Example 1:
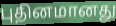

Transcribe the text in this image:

புதினமானது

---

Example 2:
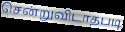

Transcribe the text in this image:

சென்றுவிடாதபடி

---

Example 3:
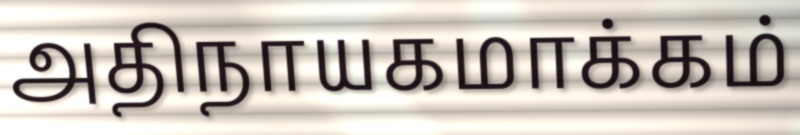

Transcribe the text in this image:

அதிநாயகமாக்கம்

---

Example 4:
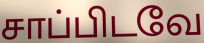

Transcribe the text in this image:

சாப்பிடவே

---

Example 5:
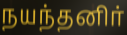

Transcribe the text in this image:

நயந்தனிர்